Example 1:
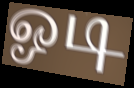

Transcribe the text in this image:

ஓடி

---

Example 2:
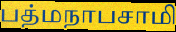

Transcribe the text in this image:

பத்மநாபசாமி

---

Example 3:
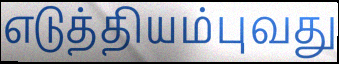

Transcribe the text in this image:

எடுத்தியம்புவது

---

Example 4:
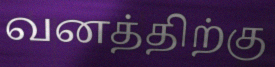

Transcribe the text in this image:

வனத்திற்கு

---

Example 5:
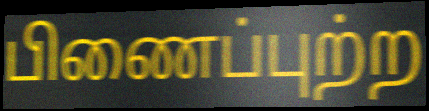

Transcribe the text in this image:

பிணைப்புற்ற